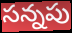
సన్నపు